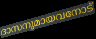
ദാസനുമായവനോട്